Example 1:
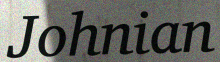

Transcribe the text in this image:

Johnian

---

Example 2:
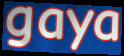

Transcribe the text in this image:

gaya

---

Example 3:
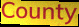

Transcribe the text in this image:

County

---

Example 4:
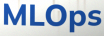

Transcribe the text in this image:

MLOps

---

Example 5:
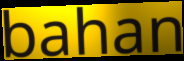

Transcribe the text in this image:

bahan